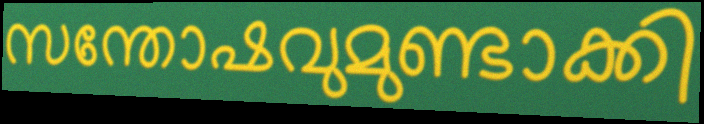
സന്തോഷവുമുണ്ടാക്കി